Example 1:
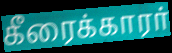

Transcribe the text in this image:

கீரைக்காரர்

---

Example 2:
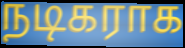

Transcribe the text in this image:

நடிகராக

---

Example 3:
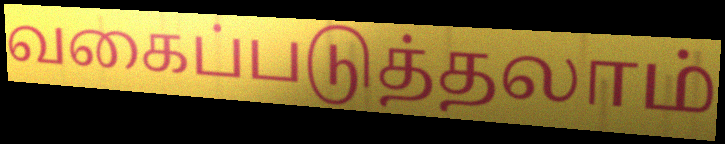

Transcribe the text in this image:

வகைப்படுத்தலாம்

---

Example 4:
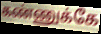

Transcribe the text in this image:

கண்ணுக்கே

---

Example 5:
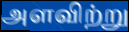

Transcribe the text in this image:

அளவிற்று